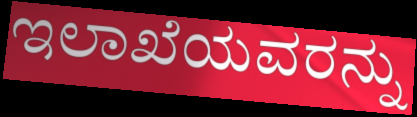
ಇಲಾಖೆಯವರನ್ನು